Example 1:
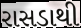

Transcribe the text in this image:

રાસડાથી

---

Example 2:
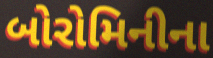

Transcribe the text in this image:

બોરોમિનીના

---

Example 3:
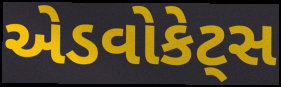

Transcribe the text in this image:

એડવોકેટ્સ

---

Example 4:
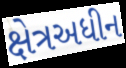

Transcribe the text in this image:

ક્ષેત્રઅધીન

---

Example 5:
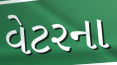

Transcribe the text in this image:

વેટરના